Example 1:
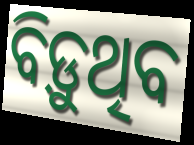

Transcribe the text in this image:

ବିଡ଼ୁଥିବ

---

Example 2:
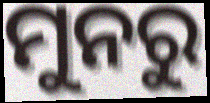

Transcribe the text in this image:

ମୁନରୁ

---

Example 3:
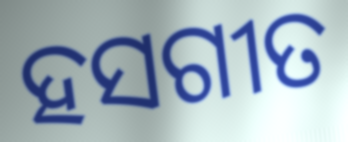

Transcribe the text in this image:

ହସଗୀତ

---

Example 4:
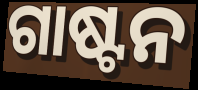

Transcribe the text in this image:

ଗାଷ୍ଟନ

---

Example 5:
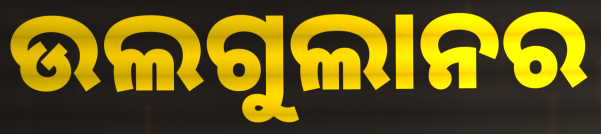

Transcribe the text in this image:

ଉଲଗୁଲାନର